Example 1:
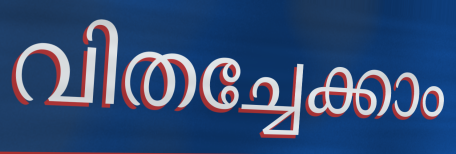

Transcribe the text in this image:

വിതച്ചേക്കാം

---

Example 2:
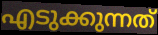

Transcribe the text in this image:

എടുക്കുന്നത്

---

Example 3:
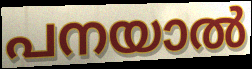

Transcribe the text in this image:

പനയാൽ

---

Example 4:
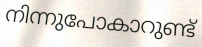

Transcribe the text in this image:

നിന്നുപോകാറുണ്ട്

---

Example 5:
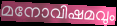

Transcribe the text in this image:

മനോവിഷമവും